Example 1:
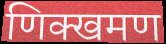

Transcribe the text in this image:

णिक्खमण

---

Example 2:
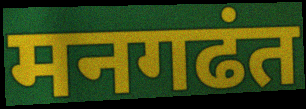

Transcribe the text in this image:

मनगढंत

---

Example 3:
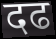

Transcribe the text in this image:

दढ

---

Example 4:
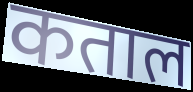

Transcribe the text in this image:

कताल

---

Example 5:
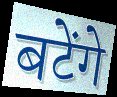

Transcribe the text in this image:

बटेंगे